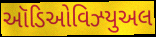
ઑડિઓવિઝ્યુઅલ